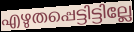
എഴുതപ്പെട്ടിട്ടില്ലേ